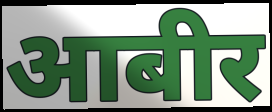
आबीर